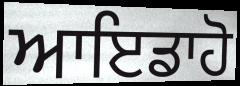
ਆਇਡਾਹੋ